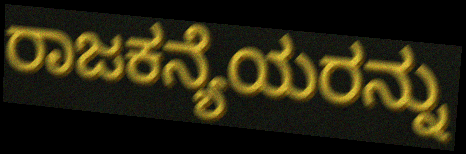
ರಾಜಕನ್ಯೆಯರನ್ನು